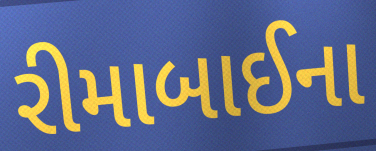
રીમાબાઈના